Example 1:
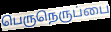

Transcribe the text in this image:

பெருநெருப்பை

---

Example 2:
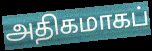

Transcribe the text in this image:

அதிகமாகப்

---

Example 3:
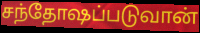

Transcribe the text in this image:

சந்தோஷப்படுவான்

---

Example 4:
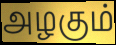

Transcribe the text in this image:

அழகும்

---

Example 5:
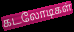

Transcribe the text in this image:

கடலோடிகள்